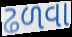
ઢળવા